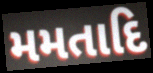
મમતાદિ